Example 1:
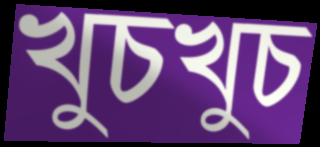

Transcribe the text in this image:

খুচখুচ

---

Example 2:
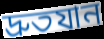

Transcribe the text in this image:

দ্রুতযান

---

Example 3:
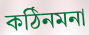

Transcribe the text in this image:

কঠিনমনা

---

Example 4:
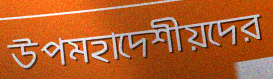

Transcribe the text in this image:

উপমহাদেশীয়দের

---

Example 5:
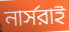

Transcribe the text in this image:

নার্সরাই